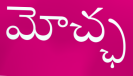
మోచ్ఛ